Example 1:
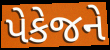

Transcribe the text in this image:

પેકેજને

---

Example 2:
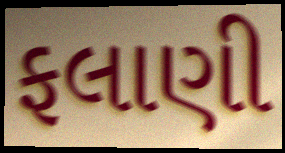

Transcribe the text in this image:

ફલાણી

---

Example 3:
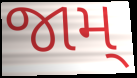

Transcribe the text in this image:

જામ્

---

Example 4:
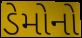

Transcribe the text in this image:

ડેમોનો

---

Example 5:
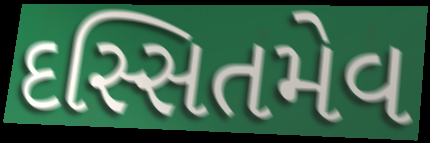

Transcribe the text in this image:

દસ્સિતમેવ